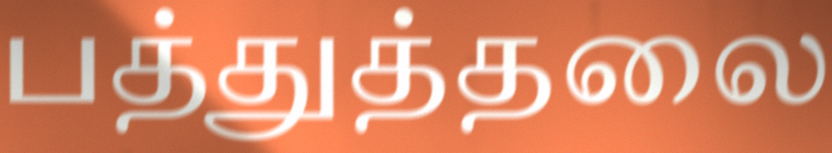
பத்துத்தலை